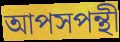
আপসপন্থী